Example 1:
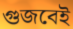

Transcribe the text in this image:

গুজবেই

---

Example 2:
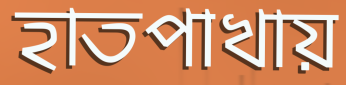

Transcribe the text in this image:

হাতপাখায়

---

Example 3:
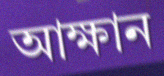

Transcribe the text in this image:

আক্ষান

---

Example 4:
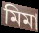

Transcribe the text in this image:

মিমা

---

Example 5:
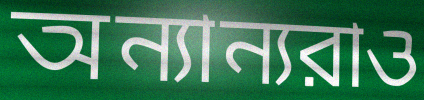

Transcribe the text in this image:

অন্যান্যরাও